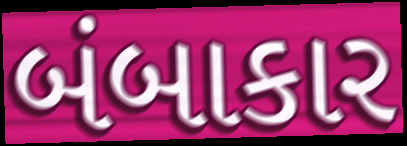
બંબાકાર